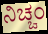
ನಿಚ್ಚಂ